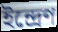
ইন্দ্রেণ